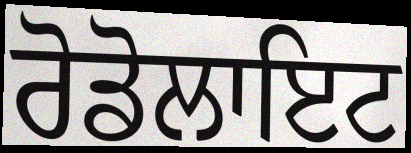
ਰੋਡੋਲਾਇਟ